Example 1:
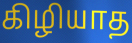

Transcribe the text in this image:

கிழியாத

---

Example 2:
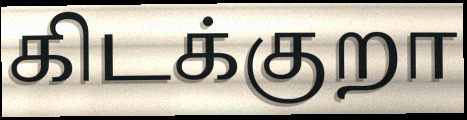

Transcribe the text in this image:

கிடக்குறா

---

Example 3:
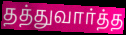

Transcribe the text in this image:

தத்துவார்த்த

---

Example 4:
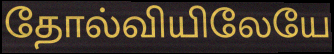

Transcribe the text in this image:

தோல்வியிலேயே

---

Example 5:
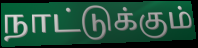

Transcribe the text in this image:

நாட்டுக்கும்